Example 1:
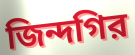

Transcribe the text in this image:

জিন্দগির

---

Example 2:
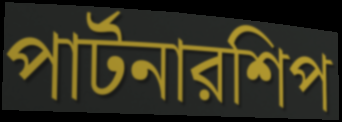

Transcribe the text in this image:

পার্টনারশিপ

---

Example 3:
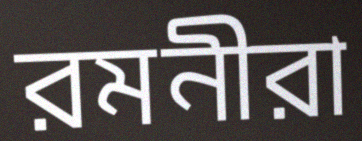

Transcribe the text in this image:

রমনীরা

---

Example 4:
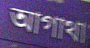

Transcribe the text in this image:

আগাথা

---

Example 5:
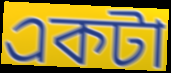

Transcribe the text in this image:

একটা